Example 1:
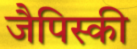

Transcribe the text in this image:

जैपिस्की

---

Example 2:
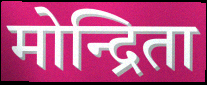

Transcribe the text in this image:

मोन्द्रिता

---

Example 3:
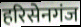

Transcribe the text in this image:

हरिसेनगंज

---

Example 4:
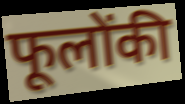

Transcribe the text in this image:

फूलोंकी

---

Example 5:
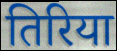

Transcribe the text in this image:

तिरिया